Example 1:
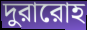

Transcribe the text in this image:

দুরারোহ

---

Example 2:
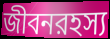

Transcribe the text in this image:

জীবনরহস্য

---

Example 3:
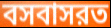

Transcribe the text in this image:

বসবাসরত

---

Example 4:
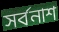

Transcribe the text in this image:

সর্বনাশ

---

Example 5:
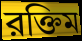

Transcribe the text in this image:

রক্তিম